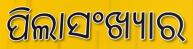
ପିଲାସଂଖ୍ୟାର